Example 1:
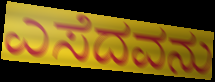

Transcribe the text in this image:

ಎಸೆದವನು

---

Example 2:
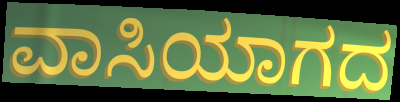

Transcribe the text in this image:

ವಾಸಿಯಾಗದ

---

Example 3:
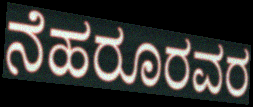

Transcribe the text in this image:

ನೆಹರೂರವರ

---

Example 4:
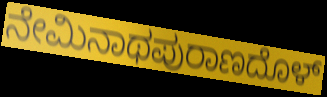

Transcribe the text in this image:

ನೇಮಿನಾಥಪುರಾಣದೊಳ್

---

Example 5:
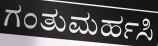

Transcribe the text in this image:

ಗಂತುಮರ್ಹಸಿ